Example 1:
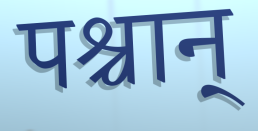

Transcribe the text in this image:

पश्चान्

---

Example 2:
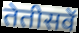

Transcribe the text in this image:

तेतीसवें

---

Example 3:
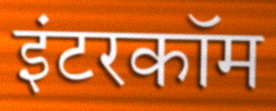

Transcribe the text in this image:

इंटरकॉम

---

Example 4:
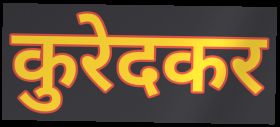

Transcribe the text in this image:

कुरेदकर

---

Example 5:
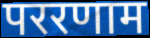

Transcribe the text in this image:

पररणाम